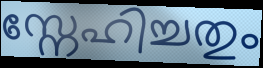
സ്നേഹിച്ചതും